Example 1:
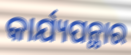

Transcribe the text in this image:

କାର୍ଯ୍ୟପନ୍ଥାର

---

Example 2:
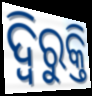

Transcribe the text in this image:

ଦ୍ୱିରୁକ୍ତି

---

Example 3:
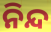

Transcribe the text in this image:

ନିନ୍ଦ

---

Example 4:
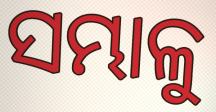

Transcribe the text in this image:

ସମ୍ଭାଳୁ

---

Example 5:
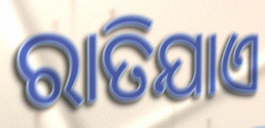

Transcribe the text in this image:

ରାତିଯାଏ